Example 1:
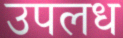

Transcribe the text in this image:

उपलध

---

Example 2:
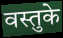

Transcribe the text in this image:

वस्तुके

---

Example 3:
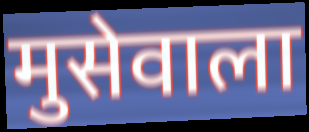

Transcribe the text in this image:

मुसेवाला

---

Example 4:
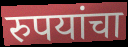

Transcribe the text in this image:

रुपयांचा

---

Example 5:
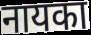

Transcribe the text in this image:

नायका